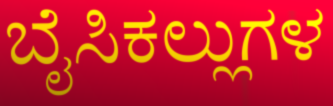
ಬೈಸಿಕಲ್ಲುಗಳ